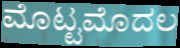
ಮೊಟ್ಟಮೊದಲ